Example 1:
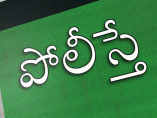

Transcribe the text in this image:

పోలీస్తే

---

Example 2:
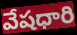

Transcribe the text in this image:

వేషధారి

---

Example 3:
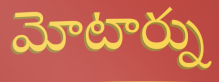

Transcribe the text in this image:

మోటార్ను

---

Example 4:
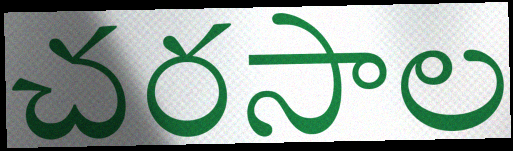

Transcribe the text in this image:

చరసాల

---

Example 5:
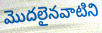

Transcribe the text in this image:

మొదలైనవాటిని